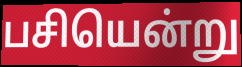
பசியென்று